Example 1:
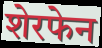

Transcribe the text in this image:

शेरफेन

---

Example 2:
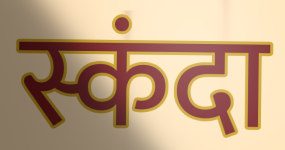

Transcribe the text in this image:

स्कंदा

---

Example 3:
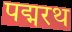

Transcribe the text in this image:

पद्मरथ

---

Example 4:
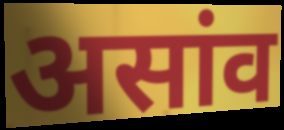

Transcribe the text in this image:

असांव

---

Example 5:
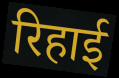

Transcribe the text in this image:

रिहाई